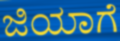
ಜಿಯಾಗೆ